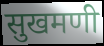
सुखमणी